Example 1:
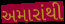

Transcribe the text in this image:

અમારાંથી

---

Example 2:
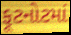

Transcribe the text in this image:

ફૂટનોટમાં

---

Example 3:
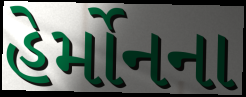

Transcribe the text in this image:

હેર્મોનના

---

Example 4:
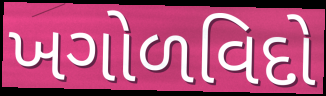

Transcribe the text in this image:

ખગોળવિદો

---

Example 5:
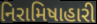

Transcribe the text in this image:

નિરામિષાહારી